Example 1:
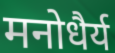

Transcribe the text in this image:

मनोधैर्य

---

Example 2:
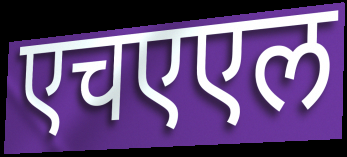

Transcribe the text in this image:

एचएएल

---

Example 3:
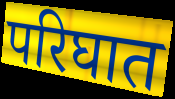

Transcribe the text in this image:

परिघात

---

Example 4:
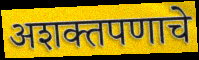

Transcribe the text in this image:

अशक्तपणाचे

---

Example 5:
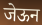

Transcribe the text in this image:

जेऊन